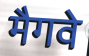
मैगवे